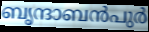
ബൃന്ദാബൻപുർ